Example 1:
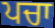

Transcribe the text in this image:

ਪਚਾ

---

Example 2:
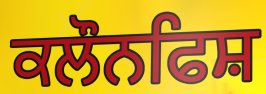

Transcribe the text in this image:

ਕਲੌਨਫਿਸ਼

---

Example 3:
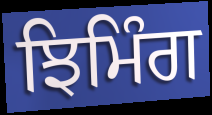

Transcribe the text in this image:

ਝਿਮਿੰਗ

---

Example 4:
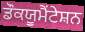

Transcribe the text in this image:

ਡੌਕਯੂਮੈਂਟੇਸ਼ਨ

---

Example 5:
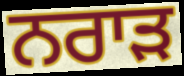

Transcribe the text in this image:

ਨਰਾੜ